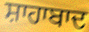
ਸ਼ਾਹਾਬਾਦ